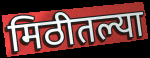
मिठीतल्या